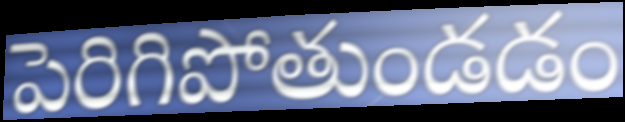
పెరిగిపోతుండడం